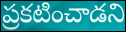
ప్రకటించాడని